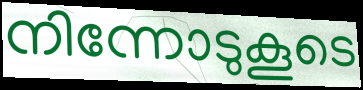
നിന്നോടുകൂടെ